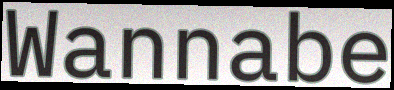
Wannabe